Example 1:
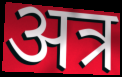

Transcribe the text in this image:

अत्र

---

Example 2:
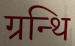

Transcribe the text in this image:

ग्रन्थि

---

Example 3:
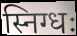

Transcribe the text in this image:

स्निग्धः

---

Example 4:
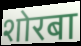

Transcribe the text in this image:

शोरबा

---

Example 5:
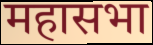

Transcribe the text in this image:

महासभा